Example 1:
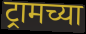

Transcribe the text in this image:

ट्रामच्या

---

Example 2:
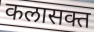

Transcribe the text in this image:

कलासक्त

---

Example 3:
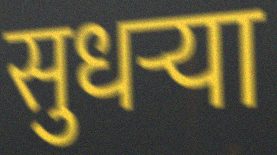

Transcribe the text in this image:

सुधर्‍या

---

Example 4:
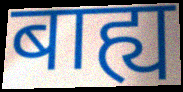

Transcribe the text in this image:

बाह्य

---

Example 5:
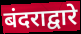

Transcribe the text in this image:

बंदराद्वारे